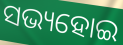
ସଭ୍ୟହୋଇ